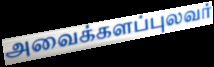
அவைக்களப்புலவர்